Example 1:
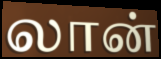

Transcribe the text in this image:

லான்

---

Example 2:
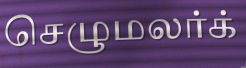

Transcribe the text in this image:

செழுமலர்க்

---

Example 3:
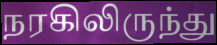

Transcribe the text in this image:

நரகிலிருந்து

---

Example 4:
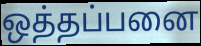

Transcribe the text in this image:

ஒத்தப்பனை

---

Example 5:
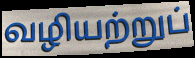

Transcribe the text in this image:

வழியற்றுப்